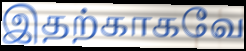
இதற்காகவே